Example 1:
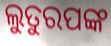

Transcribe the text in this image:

ଲୁତୁରପଙ୍କ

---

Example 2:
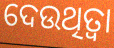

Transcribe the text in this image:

ଦେଉଥିତ୍ବା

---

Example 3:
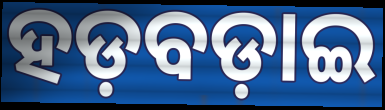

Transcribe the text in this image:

ହଡ଼ବଡ଼ାଇ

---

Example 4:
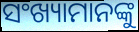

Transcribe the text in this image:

ସଂଖ୍ୟାମାନଙ୍କୁ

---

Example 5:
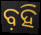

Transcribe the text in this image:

ବ଼ହି